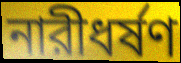
নারীধর্ষণ